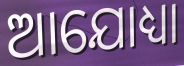
ଆଯୋଧ୍ୟା